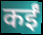
कईं